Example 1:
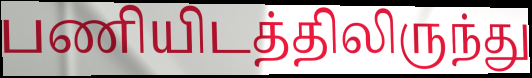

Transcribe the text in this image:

பணியிடத்திலிருந்து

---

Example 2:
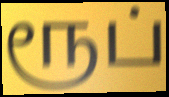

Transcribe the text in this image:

ரூப்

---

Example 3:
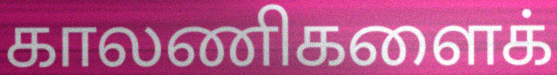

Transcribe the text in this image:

காலணிகளைக்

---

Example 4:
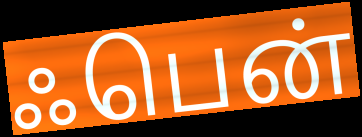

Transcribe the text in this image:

ஃபென்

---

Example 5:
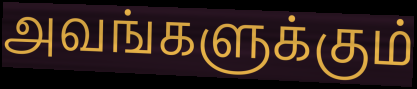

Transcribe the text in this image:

அவங்களுக்கும்